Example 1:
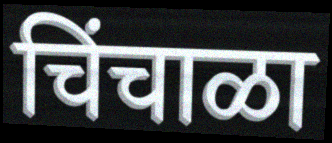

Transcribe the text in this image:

चिंचाळा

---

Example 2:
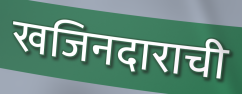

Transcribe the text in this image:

खजिनदाराची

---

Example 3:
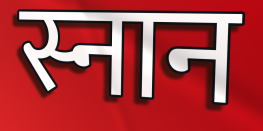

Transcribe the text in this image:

स्नान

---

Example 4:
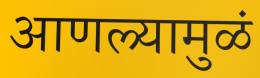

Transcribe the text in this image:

आणल्यामुळं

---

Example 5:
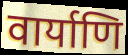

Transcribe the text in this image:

वार्याणि